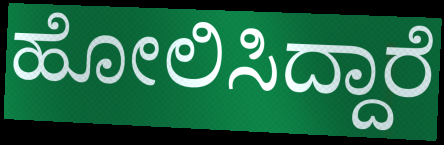
ಹೋಲಿಸಿದ್ದಾರೆ